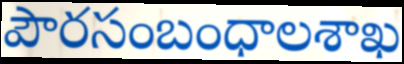
పౌరసంబంధాలశాఖ